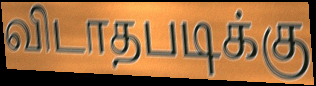
விடாதபடிக்கு